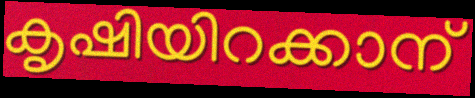
കൃഷിയിറക്കാന്